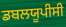
ਡਬਲਯੂਪੀਸੀ